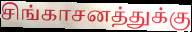
சிங்காசனத்துக்கு